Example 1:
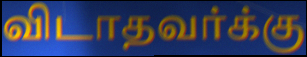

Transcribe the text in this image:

விடாதவர்க்கு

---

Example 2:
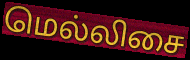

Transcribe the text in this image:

மெல்லிசை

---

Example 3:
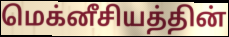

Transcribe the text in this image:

மெக்னீசியத்தின்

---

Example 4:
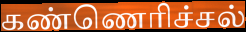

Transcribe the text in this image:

கண்ணெரிச்சல்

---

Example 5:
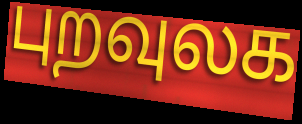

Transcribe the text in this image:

புறவுலக